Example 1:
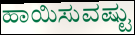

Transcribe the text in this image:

ಹಾಯಿಸುವಷ್ಟು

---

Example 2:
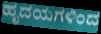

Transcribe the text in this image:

ಹೃದಯಗಳಿಂದ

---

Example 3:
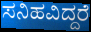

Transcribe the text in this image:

ಸನಿಹವಿದ್ದರೆ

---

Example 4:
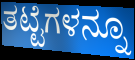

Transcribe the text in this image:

ತಟ್ಟೆಗಳನ್ನೂ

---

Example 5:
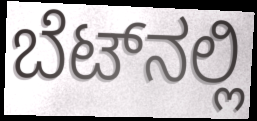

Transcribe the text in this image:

ಬೆಟ್‌ನಲ್ಲಿ